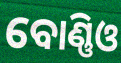
ବୋଣ୍ଣିଓ